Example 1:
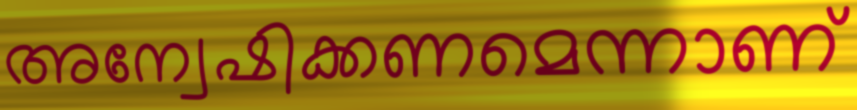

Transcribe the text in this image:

അന്വേഷിക്കണമെന്നാണ്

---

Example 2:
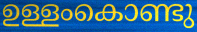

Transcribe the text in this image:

ഉള്ളംകൊണ്ടു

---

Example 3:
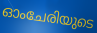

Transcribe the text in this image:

ഓംചേരിയുടെ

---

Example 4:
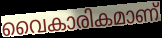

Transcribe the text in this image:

വൈകാരികമാണ്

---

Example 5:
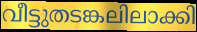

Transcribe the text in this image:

വീട്ടുതടങ്കലിലാക്കി